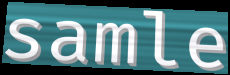
samle